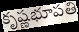
కృష్ణభూపతి